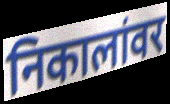
निकालांवर